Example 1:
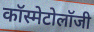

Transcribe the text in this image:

कॉस्मेटोलॉजी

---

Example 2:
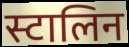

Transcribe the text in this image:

स्टालिन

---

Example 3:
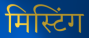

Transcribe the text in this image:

मिस्टिंग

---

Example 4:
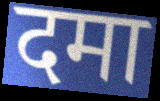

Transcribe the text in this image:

दमा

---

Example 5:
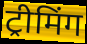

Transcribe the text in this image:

ट्रीमिंग